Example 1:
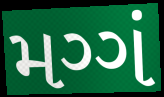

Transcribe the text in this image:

મગ્ગં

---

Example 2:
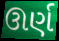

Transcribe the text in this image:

ઊર્ણ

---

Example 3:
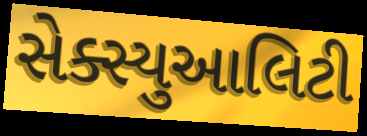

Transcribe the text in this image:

સેક્સ્યુઆલિટી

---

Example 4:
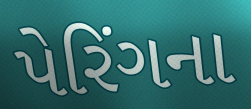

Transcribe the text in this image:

પેરિંગના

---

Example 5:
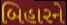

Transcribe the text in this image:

બિહારને